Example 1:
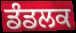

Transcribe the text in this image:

ਡੰਡਲਕ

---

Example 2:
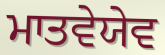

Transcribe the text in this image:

ਮਾਤਵੇਯੇਵ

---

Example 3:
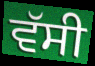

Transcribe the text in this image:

ਵੱਸੀ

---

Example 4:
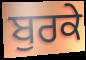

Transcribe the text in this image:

ਬੁਰਕੇ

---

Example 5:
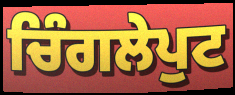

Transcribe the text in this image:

ਚਿੰਗਲੇਪੁਟ